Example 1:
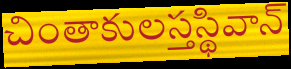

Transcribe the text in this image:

చింతాకులస్తస్థివాన్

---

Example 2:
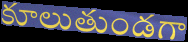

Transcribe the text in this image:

కూలుతుండగా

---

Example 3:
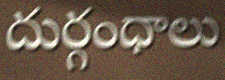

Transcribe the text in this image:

దుర్గంధాలు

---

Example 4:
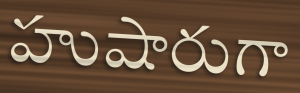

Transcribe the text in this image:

హుషారుగా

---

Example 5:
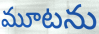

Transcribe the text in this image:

మూటను